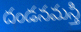
దండనమస్తి